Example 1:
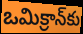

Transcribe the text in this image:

ఒమిక్రాన్‌కు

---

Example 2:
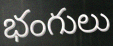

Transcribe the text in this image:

భంగులు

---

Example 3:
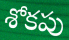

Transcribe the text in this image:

శోకపు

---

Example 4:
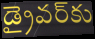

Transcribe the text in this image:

డ్రైవర్‌కు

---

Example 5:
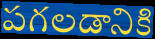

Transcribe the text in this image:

పగలడానికి